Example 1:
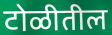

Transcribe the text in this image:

टोळीतील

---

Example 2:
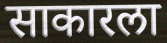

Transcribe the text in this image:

साकारला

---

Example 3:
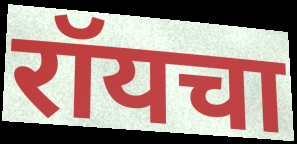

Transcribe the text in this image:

रॉयचा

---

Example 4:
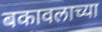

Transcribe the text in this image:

बकावलाच्या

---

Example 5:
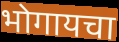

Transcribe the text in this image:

भोगायचा